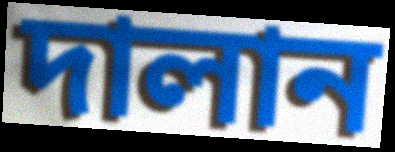
দালান